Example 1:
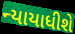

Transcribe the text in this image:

ન્યાયાધીશે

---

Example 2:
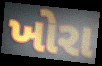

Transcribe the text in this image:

ખોરા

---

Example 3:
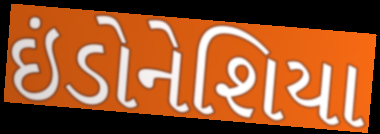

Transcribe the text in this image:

ઇંડોનેશિયા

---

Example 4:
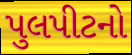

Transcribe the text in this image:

પુલપીટનો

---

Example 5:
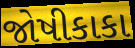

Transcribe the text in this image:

જોષીકાકા